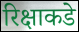
रिक्षाकडे